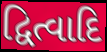
દ્વિત્વાદિ